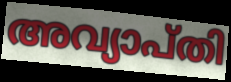
അവ്യാപ്തി